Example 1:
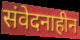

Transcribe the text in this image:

संवेदनाहीन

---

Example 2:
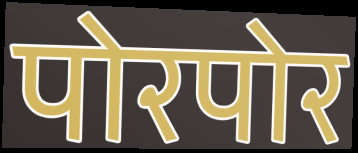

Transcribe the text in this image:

पोरपोर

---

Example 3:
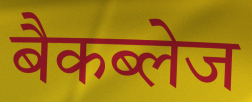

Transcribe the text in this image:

बैकब्लेज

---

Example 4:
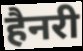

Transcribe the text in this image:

हैनरी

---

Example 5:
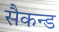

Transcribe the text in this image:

सैकन्ड